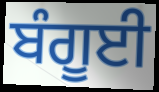
ਬੰਗੂਈ